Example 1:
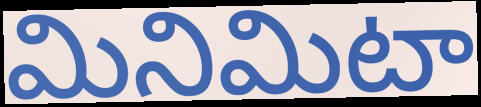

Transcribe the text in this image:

మినిమిటా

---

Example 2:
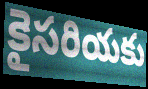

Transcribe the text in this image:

కైసరియకు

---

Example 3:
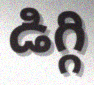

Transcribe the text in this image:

డిగ్గి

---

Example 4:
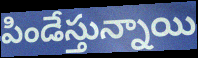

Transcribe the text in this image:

పిండేస్తున్నాయి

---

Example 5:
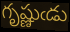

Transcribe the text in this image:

గృష్ణుఁడు